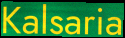
Kalsaria